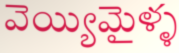
వెయ్యిమైళ్ళ